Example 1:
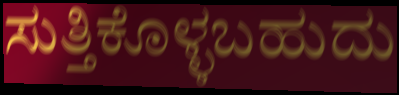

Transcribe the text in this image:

ಸುತ್ತಿಕೊಳ್ಳಬಹುದು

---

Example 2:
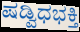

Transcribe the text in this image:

ಷಡ್ವಿಧಭಕ್ತಿ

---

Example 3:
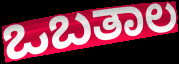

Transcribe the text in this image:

ಒಬತಾಲ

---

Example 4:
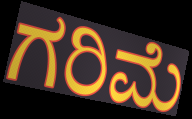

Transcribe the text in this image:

ಗರಿಮೆ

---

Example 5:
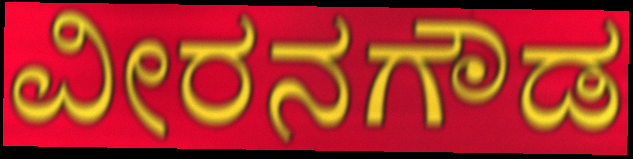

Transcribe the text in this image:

ವೀರನಗೌಡ